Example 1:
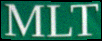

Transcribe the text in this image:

MLT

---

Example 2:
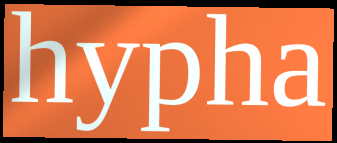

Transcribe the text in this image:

hypha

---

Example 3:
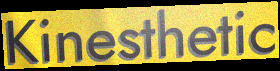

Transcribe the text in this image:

Kinesthetic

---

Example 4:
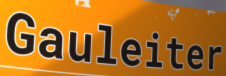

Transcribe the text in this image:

Gauleiter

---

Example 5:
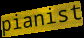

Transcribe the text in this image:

pianist